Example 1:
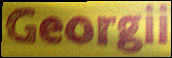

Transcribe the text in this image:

Georgii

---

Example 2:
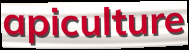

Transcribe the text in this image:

apiculture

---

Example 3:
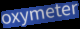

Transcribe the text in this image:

oxymeter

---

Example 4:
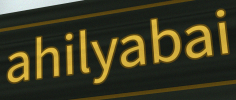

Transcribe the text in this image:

ahilyabai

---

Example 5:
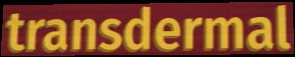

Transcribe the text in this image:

transdermal